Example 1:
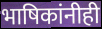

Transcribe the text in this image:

भाषिकांनीही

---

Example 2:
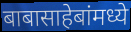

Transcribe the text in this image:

बाबासाहेबांमध्ये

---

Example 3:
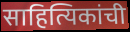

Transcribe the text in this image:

साहित्यिकांची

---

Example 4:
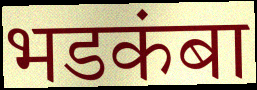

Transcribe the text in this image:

भडकंबा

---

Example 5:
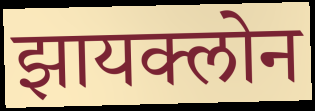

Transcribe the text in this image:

झायक्लोन